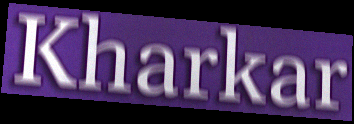
Kharkar